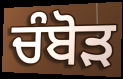
ਚੰਬੋੜ